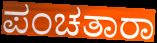
ಪಂಚತಾರಾ